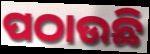
ପଠାଉଛି